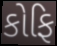
કોફિ